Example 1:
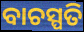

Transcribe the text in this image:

ବାଚସ୍ପତି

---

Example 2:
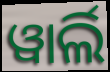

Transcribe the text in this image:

ୱାର୍ଲି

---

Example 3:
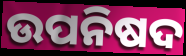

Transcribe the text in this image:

ଉପନିଷଦ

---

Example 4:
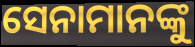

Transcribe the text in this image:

ସେନାମାନଙ୍କୁ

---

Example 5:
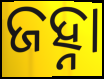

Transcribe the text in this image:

ଜହ୍ନା